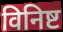
विनिष्ट